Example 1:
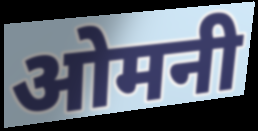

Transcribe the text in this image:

ओमनी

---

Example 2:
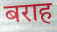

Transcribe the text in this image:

बराह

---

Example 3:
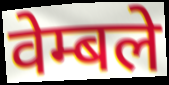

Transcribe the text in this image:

वेम्बले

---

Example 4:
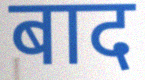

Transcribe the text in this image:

बाद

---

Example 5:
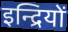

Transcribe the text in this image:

इन्द्रियों